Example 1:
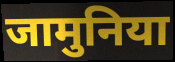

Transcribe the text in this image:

जामुनिया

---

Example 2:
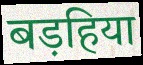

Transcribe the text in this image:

बड़हिया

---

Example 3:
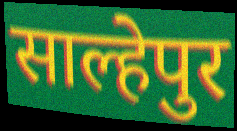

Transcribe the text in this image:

साल्हेपुर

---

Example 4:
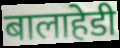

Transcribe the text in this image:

बालाहेडी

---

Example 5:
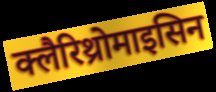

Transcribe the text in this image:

क्लैरिथ्रोमाइसिन